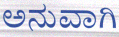
ಅನುವಾಗಿ